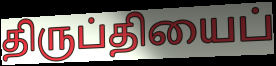
திருப்தியைப்